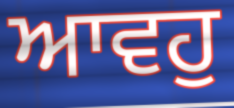
ਆਵਹੁ